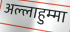
अल्लाहुम्मा